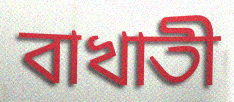
বাখাতী